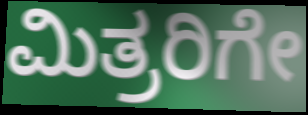
ಮಿತ್ರರಿಗೇ